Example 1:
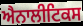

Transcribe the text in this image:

ਐਨਾਲੀਟਿਕਸ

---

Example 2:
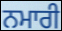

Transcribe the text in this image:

ਨਮਾਰੀ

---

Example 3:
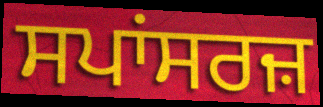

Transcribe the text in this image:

ਸਪਾਂਸਰਜ਼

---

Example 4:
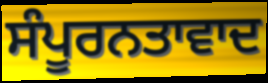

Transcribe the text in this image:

ਸੰਪੂਰਨਤਾਵਾਦ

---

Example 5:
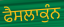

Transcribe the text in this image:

ਫੈਸਲਾਕੁੰਨ